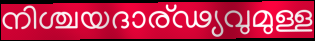
നിശ്ചയദാര്ഢ്യവുമുള്ള